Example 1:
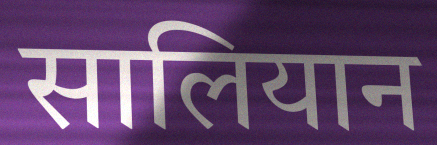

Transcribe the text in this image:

सालियान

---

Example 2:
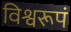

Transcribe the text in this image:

विश्वरूपं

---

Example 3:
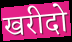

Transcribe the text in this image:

खरीदो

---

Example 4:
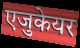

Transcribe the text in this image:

एजुकेयर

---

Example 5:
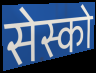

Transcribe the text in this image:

सेस्को